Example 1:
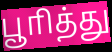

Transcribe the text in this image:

பூரித்து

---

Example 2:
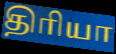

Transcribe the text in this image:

திரியா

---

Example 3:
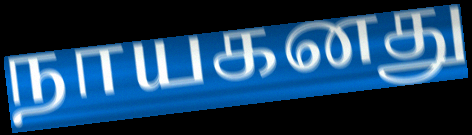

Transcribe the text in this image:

நாயகனது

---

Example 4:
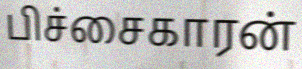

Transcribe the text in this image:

பிச்சைகாரன்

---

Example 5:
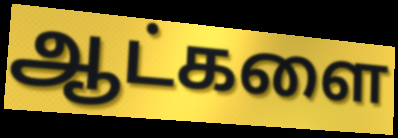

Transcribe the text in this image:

ஆட்களை